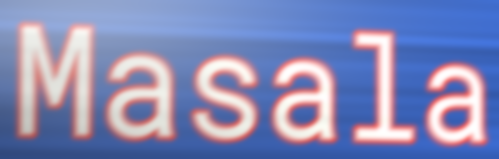
Masala